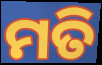
ମତି